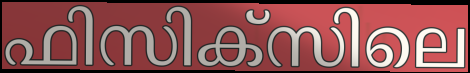
ഫിസിക്സിലെ